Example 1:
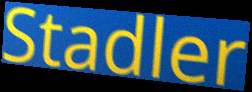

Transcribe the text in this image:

Stadler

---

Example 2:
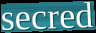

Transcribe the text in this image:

secred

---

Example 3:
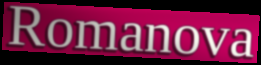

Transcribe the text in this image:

Romanova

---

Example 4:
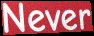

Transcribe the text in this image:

Never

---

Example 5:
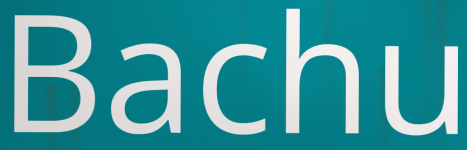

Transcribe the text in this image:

Bachu